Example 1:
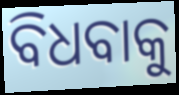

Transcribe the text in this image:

ବିଧବାକୁ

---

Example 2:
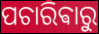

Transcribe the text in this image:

ପଚାରିଵାରୁ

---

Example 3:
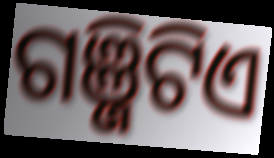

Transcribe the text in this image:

ଗଞ୍ଜିଟିଏ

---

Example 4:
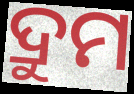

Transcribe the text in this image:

ଦ୍ରୁମ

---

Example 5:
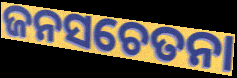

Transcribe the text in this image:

ଜନସଚେତନା